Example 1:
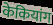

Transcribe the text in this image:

केकियांग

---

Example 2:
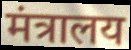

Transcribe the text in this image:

मंत्रालय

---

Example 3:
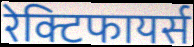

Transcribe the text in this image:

रेक्टिफायर्स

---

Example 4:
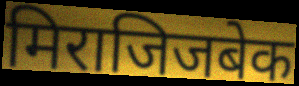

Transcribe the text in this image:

मिराजिजबेक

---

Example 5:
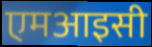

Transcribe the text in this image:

एमआइसी